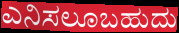
ಎನಿಸಲೂಬಹುದು